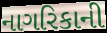
નાગરિકાની